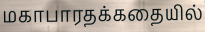
மகாபாரதக்கதையில்